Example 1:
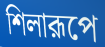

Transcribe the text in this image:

শিলারূপে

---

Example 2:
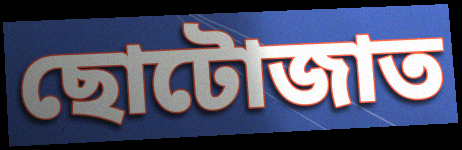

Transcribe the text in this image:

ছোটোজাত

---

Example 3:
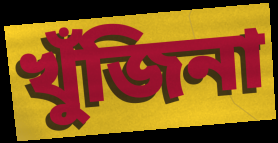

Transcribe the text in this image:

খুঁজিনা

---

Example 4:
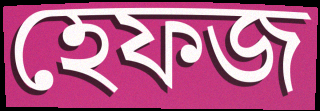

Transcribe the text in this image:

হেফজ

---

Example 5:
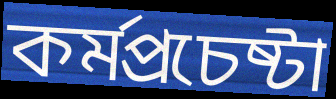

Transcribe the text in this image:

কর্মপ্রচেষ্টা